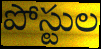
పోస్టుల